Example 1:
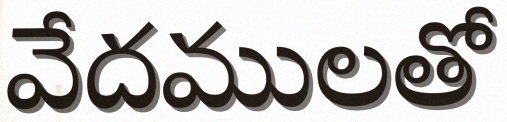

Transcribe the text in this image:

వేదములతో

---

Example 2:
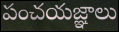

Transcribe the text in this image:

పంచయజ్ఞాలు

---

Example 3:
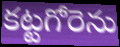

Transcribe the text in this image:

కట్టగోరెను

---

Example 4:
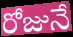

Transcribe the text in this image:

రోజునే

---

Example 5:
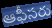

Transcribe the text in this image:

ఆఫీసరు